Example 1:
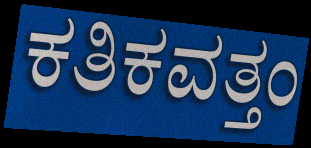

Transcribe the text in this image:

ಕತಿಕವತ್ತಂ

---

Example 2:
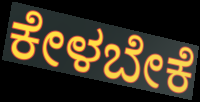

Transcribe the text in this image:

ಕೇಳಬೇಕೆ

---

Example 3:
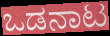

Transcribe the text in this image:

ಒಡನಾಟ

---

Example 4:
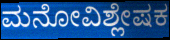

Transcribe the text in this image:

ಮನೋವಿಶ್ಲೇಷಕ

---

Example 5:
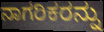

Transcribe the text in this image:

ನಾಗರಿಕರನ್ನು